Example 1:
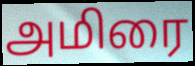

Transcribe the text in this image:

அமிரை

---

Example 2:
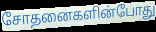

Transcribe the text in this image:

சோதனைகளின்போது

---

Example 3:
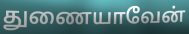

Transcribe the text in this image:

துணையாவேன்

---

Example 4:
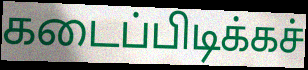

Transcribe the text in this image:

கடைப்பிடிக்கச்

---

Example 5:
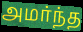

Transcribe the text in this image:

அமர்ந்த